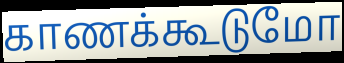
காணக்கூடுமோ